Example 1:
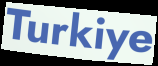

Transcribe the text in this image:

Turkiye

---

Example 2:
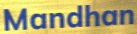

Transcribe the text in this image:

Mandhan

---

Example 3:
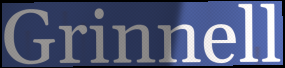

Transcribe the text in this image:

Grinnell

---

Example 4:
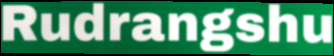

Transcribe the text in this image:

Rudrangshu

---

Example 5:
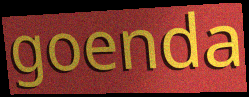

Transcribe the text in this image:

goenda